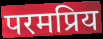
परमप्रिय